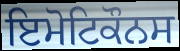
ਇਮੋਟਿਕੌਨਸ